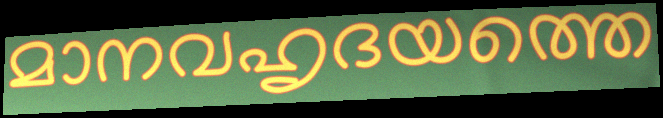
മാനവഹൃദയത്തെ